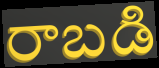
రాబడి